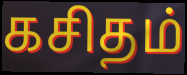
கசிதம்